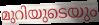
മുറിയുടെയും